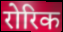
रोरिक